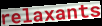
relaxants